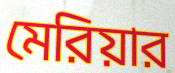
মেরিয়ার